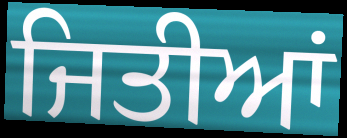
ਜਿਤੀਆਂ